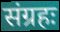
संग्रहः